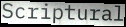
Scriptural